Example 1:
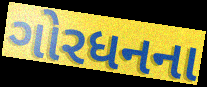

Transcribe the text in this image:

ગોરધનના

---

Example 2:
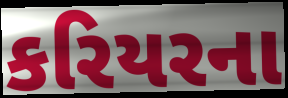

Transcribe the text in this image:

કરિયરના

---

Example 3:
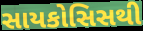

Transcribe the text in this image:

સાયકોસિસથી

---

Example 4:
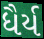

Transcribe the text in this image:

ધૈર્ય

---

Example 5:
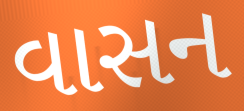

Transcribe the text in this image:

વાસન